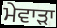
ਮੇਵਾੜਾ